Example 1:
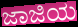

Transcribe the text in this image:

ಜಾಜಿಯ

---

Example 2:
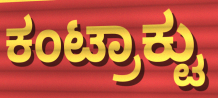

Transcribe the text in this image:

ಕಂಟ್ರಾಕ್ಟು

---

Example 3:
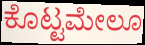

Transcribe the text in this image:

ಕೊಟ್ಟಮೇಲೂ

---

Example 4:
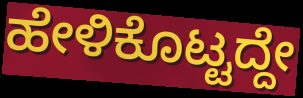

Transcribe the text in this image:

ಹೇಳಿಕೊಟ್ಟದ್ದೇ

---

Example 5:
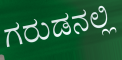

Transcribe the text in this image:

ಗರುಡನಲ್ಲಿ